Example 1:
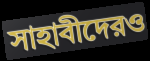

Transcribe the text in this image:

সাহাবীদেরও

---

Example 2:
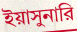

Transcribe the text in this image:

ইয়াসুনারি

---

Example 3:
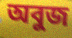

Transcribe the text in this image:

অবুজ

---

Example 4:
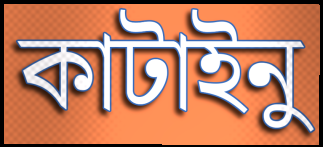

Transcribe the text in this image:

কাটাইনু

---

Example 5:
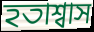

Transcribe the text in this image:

হতাশ্বাস